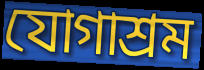
যোগাশ্রম